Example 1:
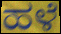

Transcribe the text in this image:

ಹಳೆ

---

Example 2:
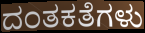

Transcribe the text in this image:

ದಂತಕತೆಗಳು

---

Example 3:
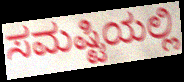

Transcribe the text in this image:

ಸಮಷ್ಟಿಯಲ್ಲಿ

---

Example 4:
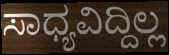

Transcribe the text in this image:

ಸಾಧ್ಯವಿದ್ದಿಲ್ಲ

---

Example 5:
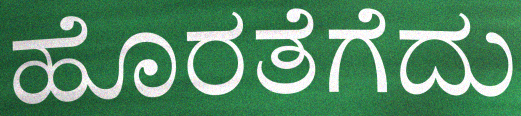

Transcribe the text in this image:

ಹೊರತೆಗೆದು